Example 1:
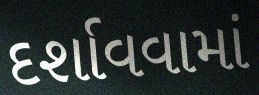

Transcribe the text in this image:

દર્શાવવામાં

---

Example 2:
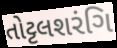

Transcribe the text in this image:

તોટ્ટલશરંગિ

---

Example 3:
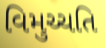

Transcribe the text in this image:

વિમુચ્ચતિ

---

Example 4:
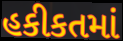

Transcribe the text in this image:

હકીકતમાં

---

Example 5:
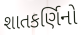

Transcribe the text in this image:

શાતકર્ણિનો